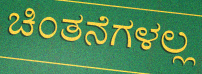
ಚಿಂತನೆಗಳಲ್ಲ